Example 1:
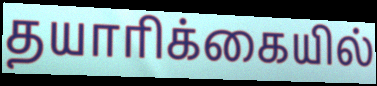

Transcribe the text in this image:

தயாரிக்கையில்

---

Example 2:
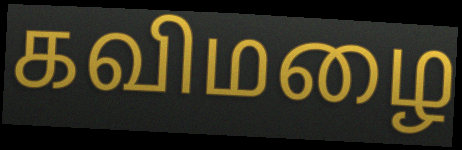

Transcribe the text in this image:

கவிமழை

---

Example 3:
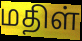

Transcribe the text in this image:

மதிள்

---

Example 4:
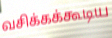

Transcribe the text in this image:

வசிக்கக்கூடிய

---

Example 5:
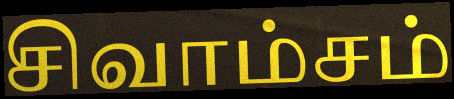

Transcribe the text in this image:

சிவாம்சம்